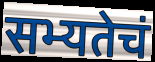
सभ्यतेचं